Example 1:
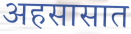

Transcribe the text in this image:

अहसासात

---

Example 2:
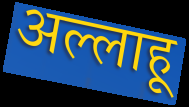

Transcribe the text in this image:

अल्लाहू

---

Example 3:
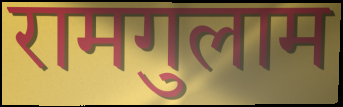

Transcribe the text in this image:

रामगुलाम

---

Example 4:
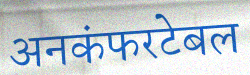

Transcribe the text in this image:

अनकंफरटेबल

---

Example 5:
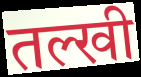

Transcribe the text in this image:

तल्‍खी